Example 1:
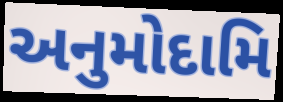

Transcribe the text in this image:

અનુમોદામિ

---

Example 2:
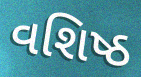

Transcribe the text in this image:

વશિષ્ઠ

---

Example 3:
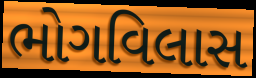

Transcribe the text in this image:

ભોગવિલાસ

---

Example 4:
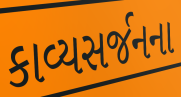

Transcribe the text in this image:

કાવ્યસર્જનના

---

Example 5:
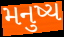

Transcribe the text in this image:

મનુષ્ય